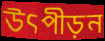
উৎপীড়ন